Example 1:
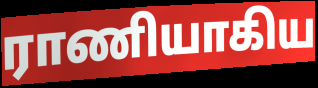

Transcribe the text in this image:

ராணியாகிய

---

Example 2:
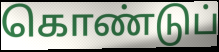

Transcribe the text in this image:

கொண்டுப்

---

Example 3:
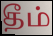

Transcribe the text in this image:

தீம்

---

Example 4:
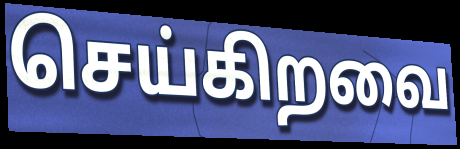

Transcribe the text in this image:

செய்கிறவை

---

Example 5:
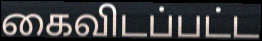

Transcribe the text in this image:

கைவிடப்பட்ட